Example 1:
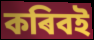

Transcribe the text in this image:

কৰিবই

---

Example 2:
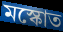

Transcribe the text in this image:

মস্কোত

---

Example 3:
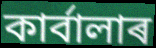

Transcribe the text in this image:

কাৰ্বালাৰ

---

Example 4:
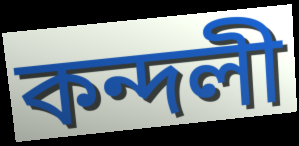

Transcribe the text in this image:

কন্দলী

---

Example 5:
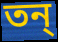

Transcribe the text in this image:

তন্